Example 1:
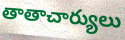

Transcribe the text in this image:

తాతాచార్యులు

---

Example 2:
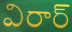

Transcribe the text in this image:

విరార్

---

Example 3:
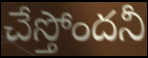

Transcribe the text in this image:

చేస్తోందనీ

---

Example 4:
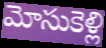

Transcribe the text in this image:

మోసుకెళ్లి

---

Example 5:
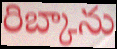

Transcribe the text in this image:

రిబ్కాను